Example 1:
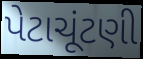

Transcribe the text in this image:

પેટાચૂંટણી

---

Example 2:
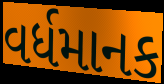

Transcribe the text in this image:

વર્ધમાનક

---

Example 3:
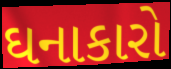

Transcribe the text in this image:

ઘનાકારો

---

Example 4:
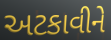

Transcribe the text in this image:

અટકાવીને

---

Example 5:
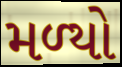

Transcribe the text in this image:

મળ્‍યો